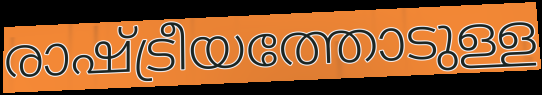
രാഷ്ട്രീയത്തോടുള്ള